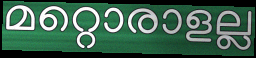
മറ്റൊരാളല്ല